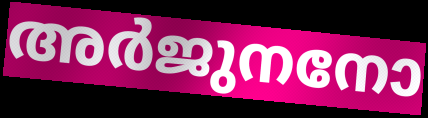
അർജുനനോ